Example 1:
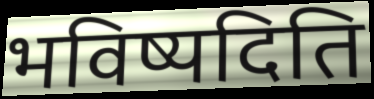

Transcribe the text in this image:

भविष्यदिति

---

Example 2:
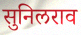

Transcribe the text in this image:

सुनिलराव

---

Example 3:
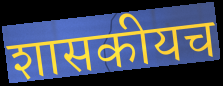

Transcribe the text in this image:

शासकीयच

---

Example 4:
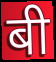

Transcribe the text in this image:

बी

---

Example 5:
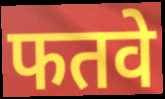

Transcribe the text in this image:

फतवे